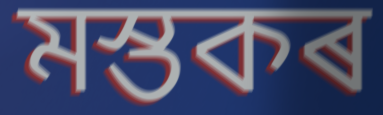
মস্তকৰ